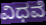
ವಿಧವೆ